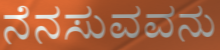
ನೆನಸುವವನು